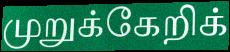
முறுக்கேறிக்